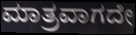
ಮಾತ್ರವಾಗದೇ